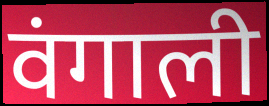
वंगाली